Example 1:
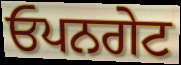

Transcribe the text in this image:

ਓਪਨਗੇਟ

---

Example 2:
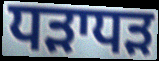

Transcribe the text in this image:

ਧੜਾਧੜ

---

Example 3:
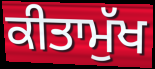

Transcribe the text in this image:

ਕੀਤਾਮੁੱਖ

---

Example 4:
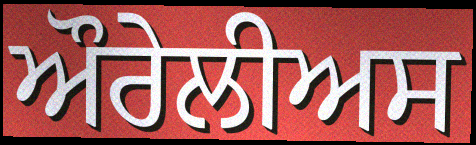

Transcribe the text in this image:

ਔਰੇਲੀਅਸ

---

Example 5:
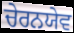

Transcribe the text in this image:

ਚੇਰਨਯੇਵ